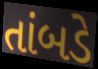
તાંબડે